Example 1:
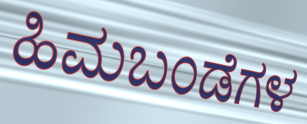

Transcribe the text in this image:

ಹಿಮಬಂಡೆಗಳ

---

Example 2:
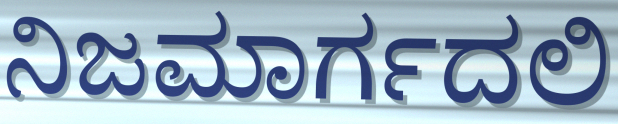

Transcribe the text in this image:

ನಿಜಮಾರ್ಗದಲಿ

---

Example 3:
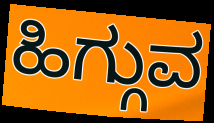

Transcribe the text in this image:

ಹಿಗ್ಗುವ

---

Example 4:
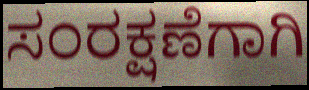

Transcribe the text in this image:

ಸಂರಕ್ಷಣೆಗಾಗಿ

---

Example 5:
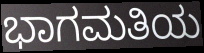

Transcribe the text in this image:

ಭಾಗಮತಿಯ